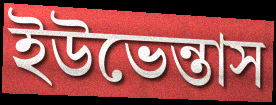
ইউভেন্তাস